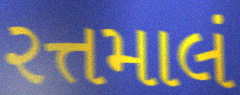
રત્તમાલં